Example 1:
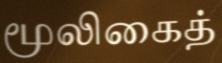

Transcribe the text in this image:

மூலிகைத்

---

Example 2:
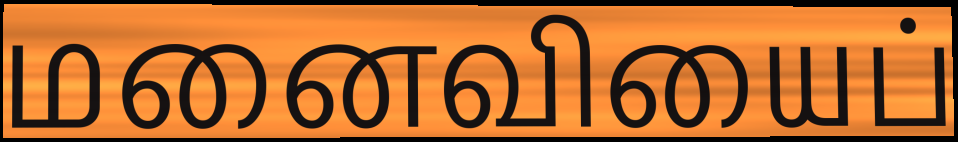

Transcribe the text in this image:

மனைவியைப்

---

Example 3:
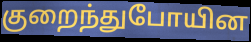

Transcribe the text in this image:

குறைந்துபோயின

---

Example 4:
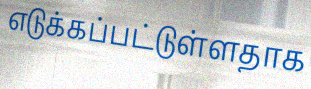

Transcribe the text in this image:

எடுக்கப்பட்டுள்ளதாக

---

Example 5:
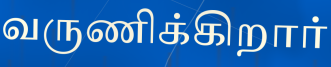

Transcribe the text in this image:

வருணிக்கிறார்